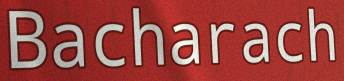
Bacharach